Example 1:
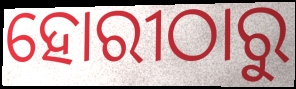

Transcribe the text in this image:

ହୋରୀଠାରୁ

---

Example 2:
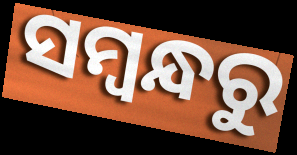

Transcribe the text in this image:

ସମ୍ୱନ୍ଧରୁ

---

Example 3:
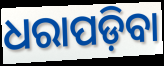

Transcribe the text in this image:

ଧରାପଡ଼ିବା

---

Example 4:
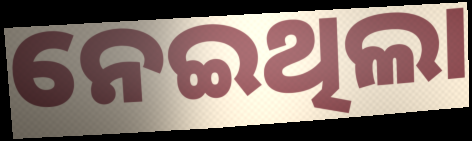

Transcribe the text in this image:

ନେଇଥିଲା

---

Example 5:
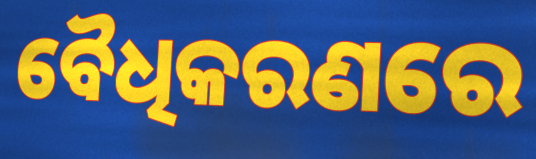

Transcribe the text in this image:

ବୈଧିକରଣରେ